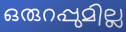
ഒരുറപ്പുമില്ല